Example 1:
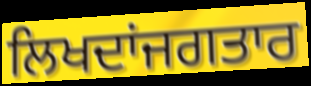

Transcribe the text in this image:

ਲਿਖਦਾਂਜਗਤਾਰ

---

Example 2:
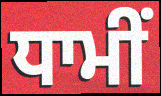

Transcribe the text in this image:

ਧਾਮੀਂ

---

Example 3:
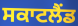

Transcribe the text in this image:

ਸਕਾਟਲੈਂਡ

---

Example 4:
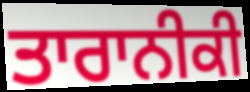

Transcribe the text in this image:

ਤਾਰਾਨੀਕੀ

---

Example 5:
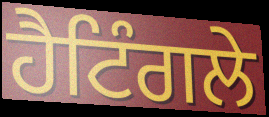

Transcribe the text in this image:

ਹੈਟਿੰਗਲੇ